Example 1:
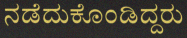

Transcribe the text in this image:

ನಡೆದುಕೊಂಡಿದ್ದರು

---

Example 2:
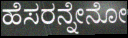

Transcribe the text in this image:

ಹೆಸರನ್ನೇನೋ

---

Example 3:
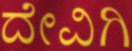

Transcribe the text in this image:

ದೇವಿಗಿ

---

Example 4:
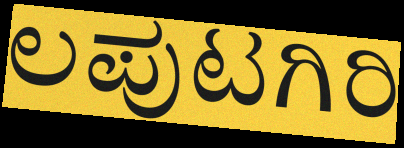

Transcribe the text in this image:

ಲಪುಟಗಿರಿ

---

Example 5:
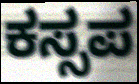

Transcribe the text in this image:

ಕಸ್ಸಪ